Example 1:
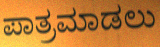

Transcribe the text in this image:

ಪಾತ್ರಮಾಡಲು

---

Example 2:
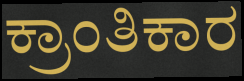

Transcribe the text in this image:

ಕ್ರಾಂತಿಕಾರ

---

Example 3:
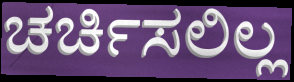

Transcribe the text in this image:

ಚರ್ಚಿಸಲಿಲ್ಲ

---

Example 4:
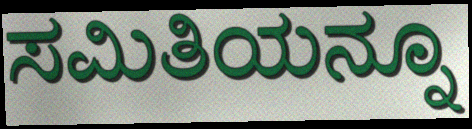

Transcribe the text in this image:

ಸಮಿತಿಯನ್ನೂ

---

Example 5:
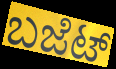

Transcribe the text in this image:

ಬಜೆಟ್